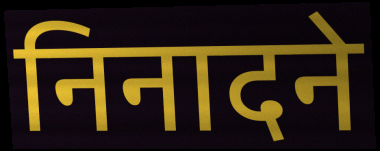
निनादने